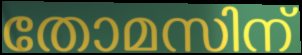
തോമസിന്